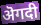
ऄगदी